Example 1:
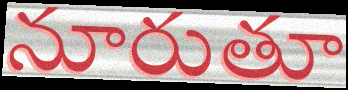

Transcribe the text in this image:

నూరుతూ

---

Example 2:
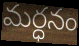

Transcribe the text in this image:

మర్ధనం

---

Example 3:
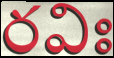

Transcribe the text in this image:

రవిః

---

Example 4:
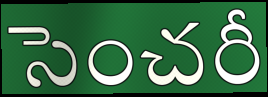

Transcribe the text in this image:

సెంచరీ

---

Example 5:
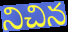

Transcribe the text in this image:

నిచిన